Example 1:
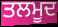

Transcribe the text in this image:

ਤਲਮੂਦ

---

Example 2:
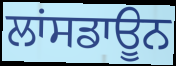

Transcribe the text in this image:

ਲਾਂਸਡਾਊਨ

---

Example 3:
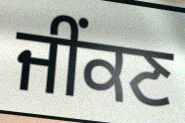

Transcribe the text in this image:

ਜੀਂਕਣ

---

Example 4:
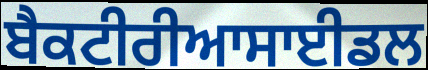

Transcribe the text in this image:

ਬੈਕਟੀਰੀਆਸਾਈਡਲ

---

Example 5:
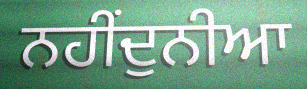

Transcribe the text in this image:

ਨਹੀਂਦੁਨੀਆ